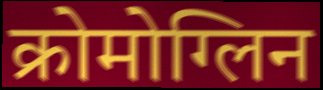
क्रोमोग्लिन